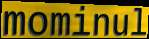
mominul